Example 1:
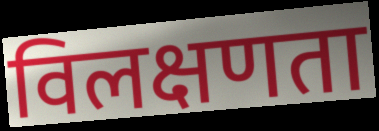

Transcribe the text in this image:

विलक्षणता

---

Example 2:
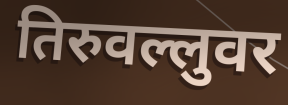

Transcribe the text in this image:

तिरुवल्लुवर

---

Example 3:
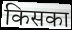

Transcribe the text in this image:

किसका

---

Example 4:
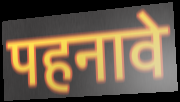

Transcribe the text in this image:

पहनावे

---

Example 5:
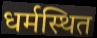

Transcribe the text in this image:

धर्मस्थित